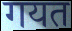
गयत